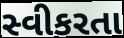
સ્વીકરતા